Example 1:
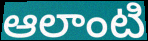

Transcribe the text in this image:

ఆలాంటి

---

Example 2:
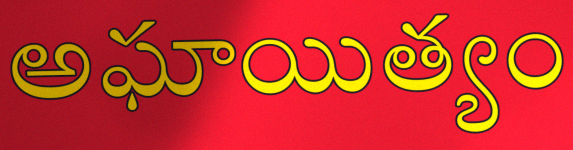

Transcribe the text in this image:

అఘాయిత్యం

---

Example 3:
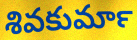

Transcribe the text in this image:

శివకుమార్‍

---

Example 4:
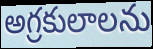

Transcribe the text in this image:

అగ్రకులాలను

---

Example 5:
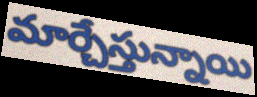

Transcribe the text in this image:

మార్చేస్తున్నాయి